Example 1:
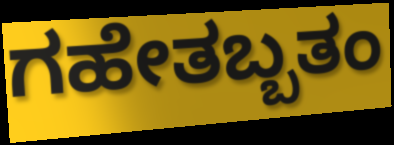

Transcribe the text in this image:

ಗಹೇತಬ್ಬತಂ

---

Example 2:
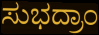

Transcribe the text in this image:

ಸುಭದ್ರಾಂ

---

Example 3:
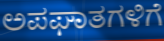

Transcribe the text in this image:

ಅಪಘಾತಗಳಿಗೆ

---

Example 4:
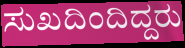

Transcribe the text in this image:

ಸುಖದಿಂದಿದ್ದರು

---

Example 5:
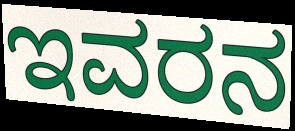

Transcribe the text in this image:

ಇವರನ